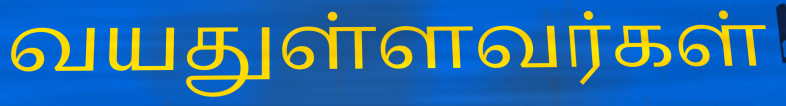
வயதுள்ளவர்கள்